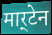
मार्टेन